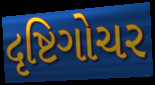
દૃષ્ટિગોચર